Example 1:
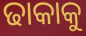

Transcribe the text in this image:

ଢାକାକୁ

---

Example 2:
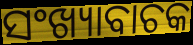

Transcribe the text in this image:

ସଂଖ୍ୟାବାଚକ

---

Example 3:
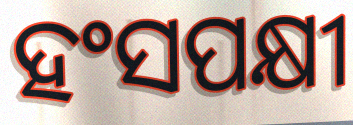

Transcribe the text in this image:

ହଂସପକ୍ଷୀ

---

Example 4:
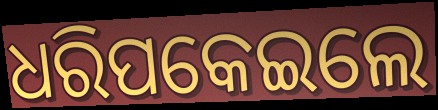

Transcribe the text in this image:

ଧରିପକେଇଲେ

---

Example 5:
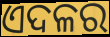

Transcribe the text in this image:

ଏଦଳର